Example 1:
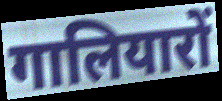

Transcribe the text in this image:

गालियारों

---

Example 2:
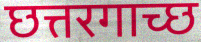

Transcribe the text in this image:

छत्तरगाच्छ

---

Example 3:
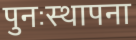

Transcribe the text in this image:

पुनःस्थापना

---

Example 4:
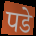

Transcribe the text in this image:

पडे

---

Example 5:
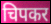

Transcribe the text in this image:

चिपकर